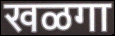
खळगा